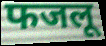
फजलू